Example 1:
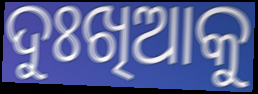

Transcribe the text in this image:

ଦୁଃଖିଆକୁ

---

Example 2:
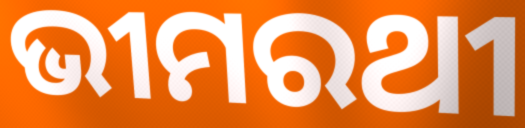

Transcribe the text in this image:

ଭୀମରଥୀ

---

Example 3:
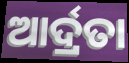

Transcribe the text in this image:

ଆର୍ଦ୍ରତା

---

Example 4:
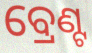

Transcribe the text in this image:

ବ୍ରେଣ୍ଟ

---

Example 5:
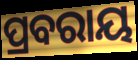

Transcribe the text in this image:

ପ୍ରବରାୟ